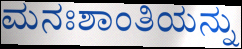
ಮನಃಶಾಂತಿಯನ್ನು